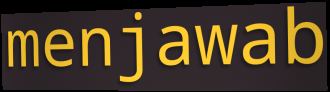
menjawab